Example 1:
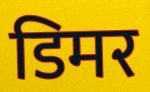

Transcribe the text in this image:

डिमर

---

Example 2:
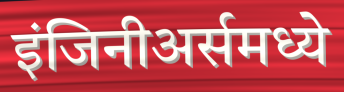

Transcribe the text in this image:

इंजिनीअर्समध्ये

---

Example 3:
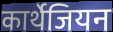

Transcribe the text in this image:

कार्थेजियन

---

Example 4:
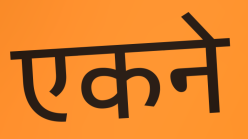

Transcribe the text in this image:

एकने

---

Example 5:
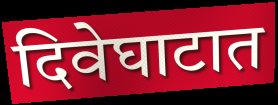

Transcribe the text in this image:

दिवेघाटात